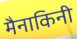
मैनाकिनी